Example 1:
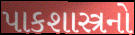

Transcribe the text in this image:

પાકશાસ્ત્રનો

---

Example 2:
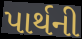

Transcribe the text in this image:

પાર્થની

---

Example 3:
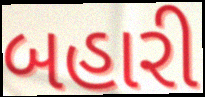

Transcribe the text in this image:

બહારી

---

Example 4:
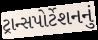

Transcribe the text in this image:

ટ્રાન્સપોર્ટેશનનું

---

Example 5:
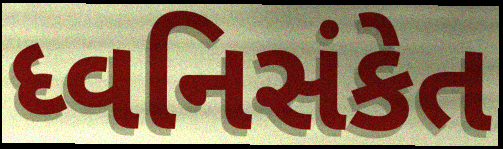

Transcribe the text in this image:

ધ્વનિસંકેત